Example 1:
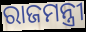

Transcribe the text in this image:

ରାଜମନ୍ତ୍ରୀ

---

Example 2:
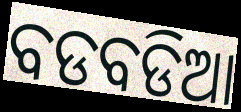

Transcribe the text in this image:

ବଡବଡିଆ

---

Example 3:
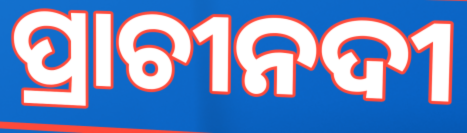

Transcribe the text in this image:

ପ୍ରାଚୀନଦୀ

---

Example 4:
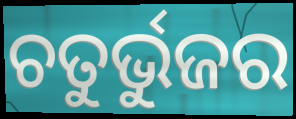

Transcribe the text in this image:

ଚତୁର୍ଭୁଜର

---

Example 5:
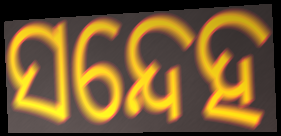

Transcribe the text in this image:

ସନ୍ଦେହ